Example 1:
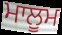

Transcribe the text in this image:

ਮਾਲੂਮ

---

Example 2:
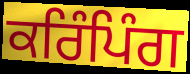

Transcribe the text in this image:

ਕਰਿੰਪਿੰਗ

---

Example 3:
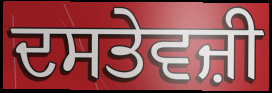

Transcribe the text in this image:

ਦਸਤੇਵਜ਼ੀ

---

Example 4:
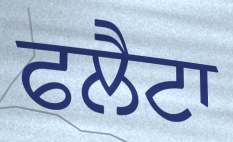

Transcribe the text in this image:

ਫਲੈਟਾ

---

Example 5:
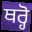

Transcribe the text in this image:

ਥਰ੍ਹੋ